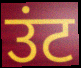
उंट